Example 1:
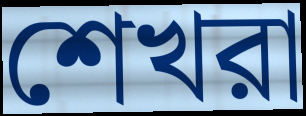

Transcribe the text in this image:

শেখরা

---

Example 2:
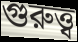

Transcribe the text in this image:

গুরুত্ত্ব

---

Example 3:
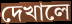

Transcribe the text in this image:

দেখালে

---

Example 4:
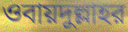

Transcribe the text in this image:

ওবায়দুল্লাহর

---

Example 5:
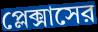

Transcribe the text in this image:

প্লেক্সাসের